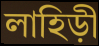
লাহিড়ী